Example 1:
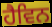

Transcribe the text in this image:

ਹੈਵਿਨ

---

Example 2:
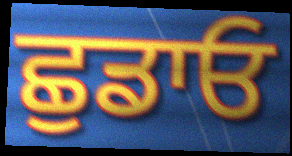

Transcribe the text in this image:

ਛੁਡਾਓ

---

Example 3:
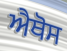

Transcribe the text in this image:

ਐਥੋਸ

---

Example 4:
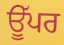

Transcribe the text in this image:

ਊੱਪਰ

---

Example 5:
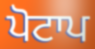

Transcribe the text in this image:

ਪੋਟਾਪ